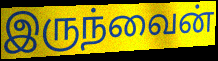
இருந்வைன்